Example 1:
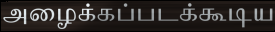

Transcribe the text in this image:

அழைக்கப்படக்கூடிய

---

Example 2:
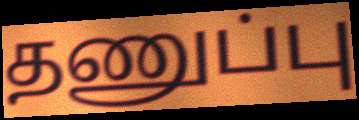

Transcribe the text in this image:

தணுப்பு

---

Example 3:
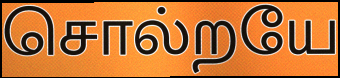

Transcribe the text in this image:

சொல்றயே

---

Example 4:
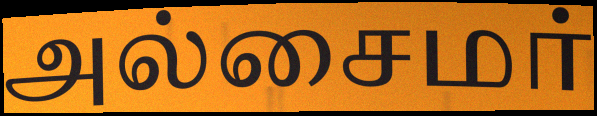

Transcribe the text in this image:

அல்சைமர்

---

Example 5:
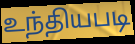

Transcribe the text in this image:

உந்தியபடி